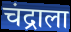
चंद्राला